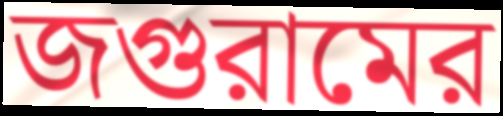
জগুরামের